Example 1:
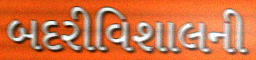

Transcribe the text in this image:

બદરીવિશાલની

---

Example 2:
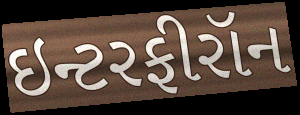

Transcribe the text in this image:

ઇન્ટરફીરૉન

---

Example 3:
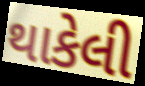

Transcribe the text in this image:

થાકેલી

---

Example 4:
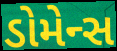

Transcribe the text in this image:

ડોમેન્સ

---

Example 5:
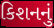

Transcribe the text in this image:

કિશનનું